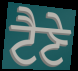
ਟੈਣੇ